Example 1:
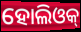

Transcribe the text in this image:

ହୋଲିଓକ୍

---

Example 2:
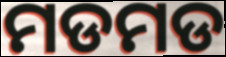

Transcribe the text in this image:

ମଡମଡ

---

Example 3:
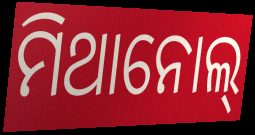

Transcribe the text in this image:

ମିଥାନୋଲ୍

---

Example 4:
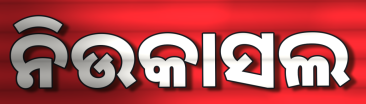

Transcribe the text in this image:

ନିଉକାସଲ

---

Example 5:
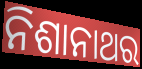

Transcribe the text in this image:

ନିଶାନାଥର